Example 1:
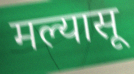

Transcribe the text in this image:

मल्यासू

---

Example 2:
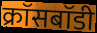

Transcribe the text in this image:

क्रॉसबॉडी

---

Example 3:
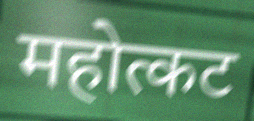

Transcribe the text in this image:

महोत्कट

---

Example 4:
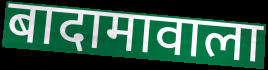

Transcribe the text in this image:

बादामावाला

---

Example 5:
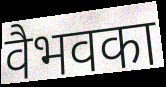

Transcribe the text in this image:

वैभवका